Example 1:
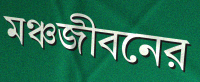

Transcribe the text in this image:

মঞ্চজীবনের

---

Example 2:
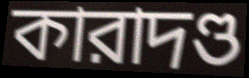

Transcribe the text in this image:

কারাদণ্ড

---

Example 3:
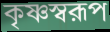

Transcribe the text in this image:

কৃষ্ণস্বরূপ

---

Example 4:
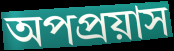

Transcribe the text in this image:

অপপ্রয়াস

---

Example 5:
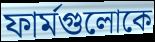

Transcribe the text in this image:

ফার্মগুলোকে